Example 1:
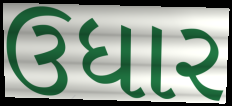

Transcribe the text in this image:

ઉધાર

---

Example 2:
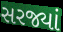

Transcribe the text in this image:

સરજ્યાં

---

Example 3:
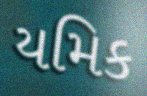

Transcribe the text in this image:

યમિક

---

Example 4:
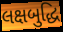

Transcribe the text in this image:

લક્ષબુદ્ધિ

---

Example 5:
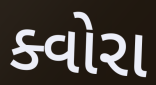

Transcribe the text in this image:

ક્વોરા